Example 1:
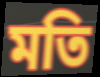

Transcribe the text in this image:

মতি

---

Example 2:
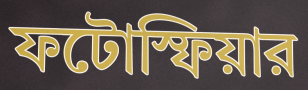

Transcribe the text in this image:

ফটোস্ফিয়ার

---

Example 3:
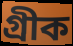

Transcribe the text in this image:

গ্রীক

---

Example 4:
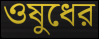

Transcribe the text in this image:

ওষুধের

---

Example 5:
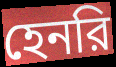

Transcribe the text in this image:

হেনরি